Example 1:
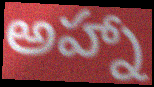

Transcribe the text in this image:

అహ్నా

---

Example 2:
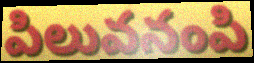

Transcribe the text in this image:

పిలువనంపి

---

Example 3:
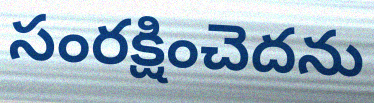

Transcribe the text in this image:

సంరక్షించెదను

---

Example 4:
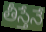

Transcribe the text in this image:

తీస్తేనే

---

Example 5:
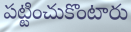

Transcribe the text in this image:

పట్టించుకొంటారు